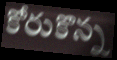
కోరుకొన్న